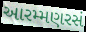
આરમ્મણરસં